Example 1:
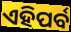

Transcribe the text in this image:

ଏହିପର୍ବ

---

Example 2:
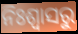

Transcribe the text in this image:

ନିଃଶ୍ବାସରୁ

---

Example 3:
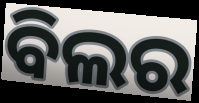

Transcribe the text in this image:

ବିଲର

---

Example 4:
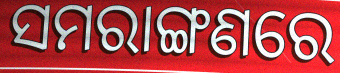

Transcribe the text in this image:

ସମରାଙ୍ଗଣରେ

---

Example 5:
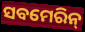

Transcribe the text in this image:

ସବମେରିନ୍